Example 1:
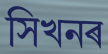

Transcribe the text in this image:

সিখনৰ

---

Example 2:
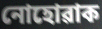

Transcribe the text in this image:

নোহোৱাক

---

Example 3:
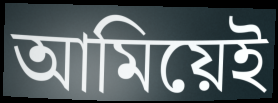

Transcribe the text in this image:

আমিয়েই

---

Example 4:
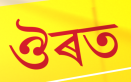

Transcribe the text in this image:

ঔৰত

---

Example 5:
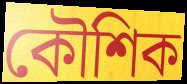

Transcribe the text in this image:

কৌশিক